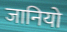
जानियो